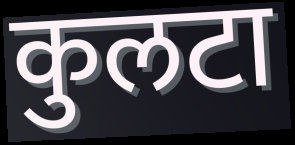
कुलटा